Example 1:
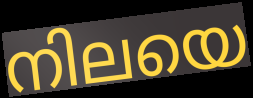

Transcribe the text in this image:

നിലയെ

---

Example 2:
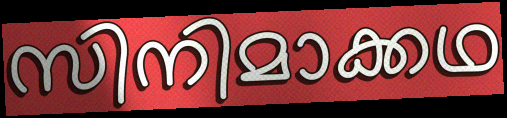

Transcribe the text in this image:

സിനിമാക്കഥ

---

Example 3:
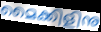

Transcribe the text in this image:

മൈക്കിളിനു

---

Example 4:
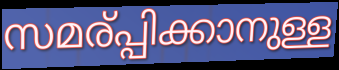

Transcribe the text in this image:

സമര്പ്പിക്കാനുള്ള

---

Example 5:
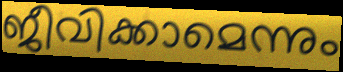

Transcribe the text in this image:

ജീവിക്കാമെന്നും